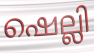
ഷെല്ലി